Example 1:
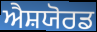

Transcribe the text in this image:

ਐਸ਼ਯੋਰਡ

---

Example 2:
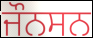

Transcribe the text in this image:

ਜੌਨਸਨ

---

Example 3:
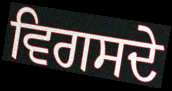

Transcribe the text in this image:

ਵਿਗਸਦੇ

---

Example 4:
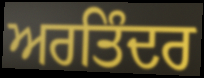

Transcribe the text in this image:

ਅਰਤਿੰਦਰ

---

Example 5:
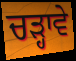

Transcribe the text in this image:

ਚੜ੍ਹਾਵੇ